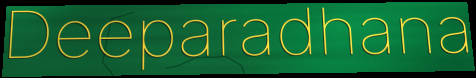
Deeparadhana